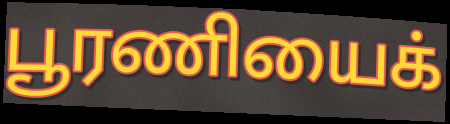
பூரணியைக்